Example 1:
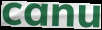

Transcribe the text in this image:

canu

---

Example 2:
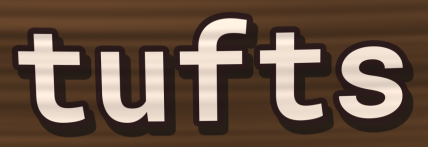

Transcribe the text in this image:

tufts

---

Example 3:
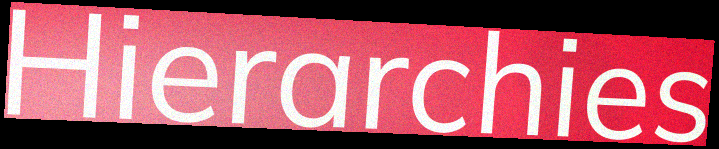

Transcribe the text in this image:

Hierarchies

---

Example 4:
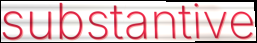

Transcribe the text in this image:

substantive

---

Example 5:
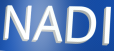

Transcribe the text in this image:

NADI